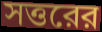
সত্তরের